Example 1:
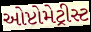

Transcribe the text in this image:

ઓપ્ટોમેટ્રીસ્ટ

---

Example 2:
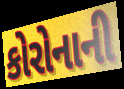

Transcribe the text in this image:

કોરોનાની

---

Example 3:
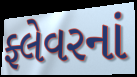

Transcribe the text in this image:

ફ્લેવરનાં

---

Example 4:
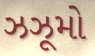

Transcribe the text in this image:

ઝઝૂમો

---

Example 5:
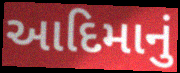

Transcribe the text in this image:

આદિમાનું